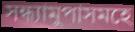
সন্ধ্যামুপাসমহে